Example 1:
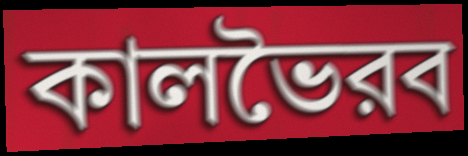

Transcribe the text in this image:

কালভৈরব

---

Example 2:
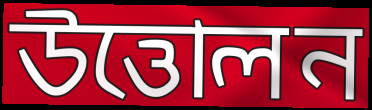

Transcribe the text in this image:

উত্তোলন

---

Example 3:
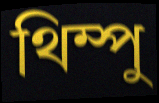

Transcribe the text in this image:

থিম্পু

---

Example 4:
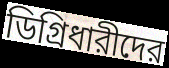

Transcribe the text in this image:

ডিগ্রিধারীদের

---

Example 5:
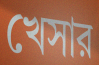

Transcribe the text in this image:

খেসার